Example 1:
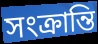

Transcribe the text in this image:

সংক্ৰান্তি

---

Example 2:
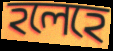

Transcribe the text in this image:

হলেহে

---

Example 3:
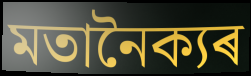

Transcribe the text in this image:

মতানৈক্যৰ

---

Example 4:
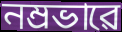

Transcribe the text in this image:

নম্ৰভাৱে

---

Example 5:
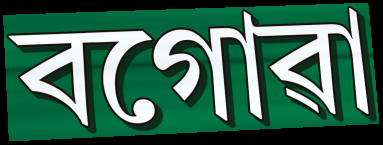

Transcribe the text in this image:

বগোৱা